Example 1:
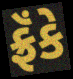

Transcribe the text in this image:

ફ્રૅંકે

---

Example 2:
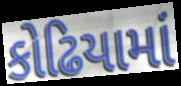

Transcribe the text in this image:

કોઢિયામાં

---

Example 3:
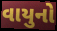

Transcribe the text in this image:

વાયુનો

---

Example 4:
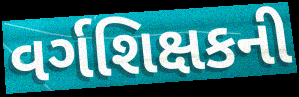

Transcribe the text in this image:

વર્ગશિક્ષકની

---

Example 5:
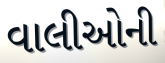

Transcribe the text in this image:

વાલીઓની